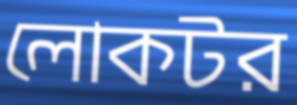
লোকটর